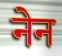
नेन